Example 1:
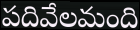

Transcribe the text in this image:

పదివేలమంది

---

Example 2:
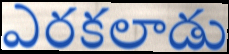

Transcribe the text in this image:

ఎరకలాడు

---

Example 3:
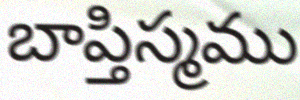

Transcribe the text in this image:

బాప్తిస్మము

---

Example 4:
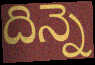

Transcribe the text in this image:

దిన్నె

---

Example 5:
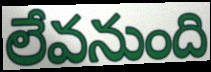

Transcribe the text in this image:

లేవనుంది